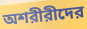
অশরীরীদের